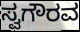
ಸ್ವಗೌರವ